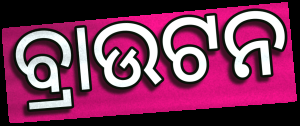
ବ୍ରାଉଟନ